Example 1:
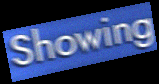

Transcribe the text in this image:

Showing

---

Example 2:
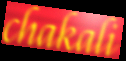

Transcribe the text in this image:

chakali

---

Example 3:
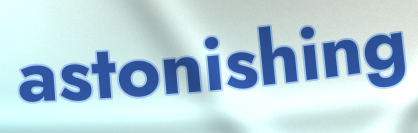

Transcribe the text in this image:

astonishing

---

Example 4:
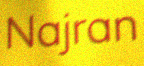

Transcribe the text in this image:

Najran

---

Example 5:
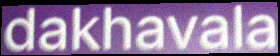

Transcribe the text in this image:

dakhavala